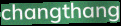
changthang